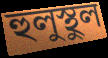
হুলুস্থুল